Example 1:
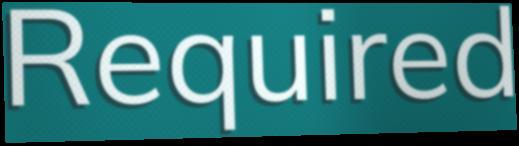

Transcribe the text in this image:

Required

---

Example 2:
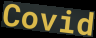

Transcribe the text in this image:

Covid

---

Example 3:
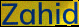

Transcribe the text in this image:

Zahid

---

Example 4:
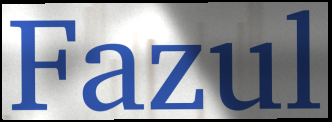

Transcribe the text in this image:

Fazul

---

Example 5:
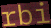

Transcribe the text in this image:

rbi